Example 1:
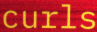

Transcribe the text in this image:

curls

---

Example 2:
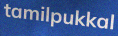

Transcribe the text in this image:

tamilpukkal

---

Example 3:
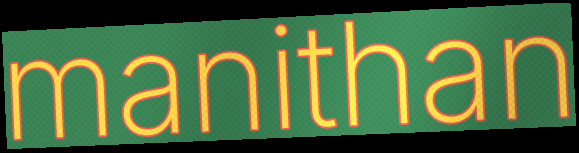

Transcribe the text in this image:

manithan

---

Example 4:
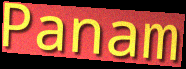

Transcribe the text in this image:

Panam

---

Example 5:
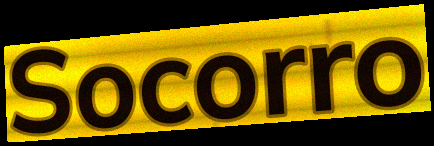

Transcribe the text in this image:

Socorro